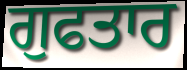
ਗੁਫਤਾਰ